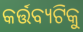
କର୍ତ୍ତବ୍ୟଟିକୁ